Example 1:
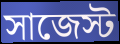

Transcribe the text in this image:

সাজেস্ট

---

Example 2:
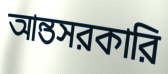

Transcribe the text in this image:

আন্তসরকারি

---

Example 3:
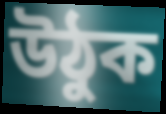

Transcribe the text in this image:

উঠুক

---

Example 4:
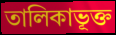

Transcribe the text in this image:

তালিকাভূক্ত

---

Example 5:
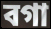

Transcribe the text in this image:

বগা